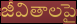
జీవితాలపై